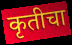
कृतीचा